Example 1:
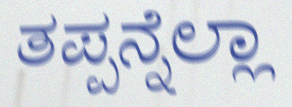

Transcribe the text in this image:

ತಪ್ಪನ್ನೆಲ್ಲಾ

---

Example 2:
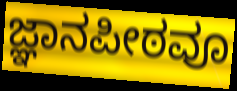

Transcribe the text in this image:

ಜ್ಞಾನಪೀಠವೂ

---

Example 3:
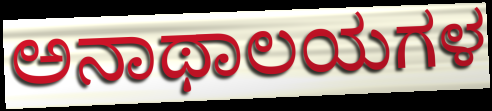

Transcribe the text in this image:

ಅನಾಥಾಲಯಗಳ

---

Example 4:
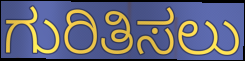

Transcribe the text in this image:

ಗುರಿತಿಸಲು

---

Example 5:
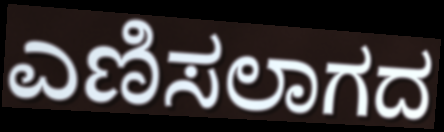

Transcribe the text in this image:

ಎಣಿಸಲಾಗದ